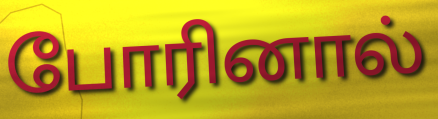
போரினால்